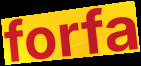
forfa